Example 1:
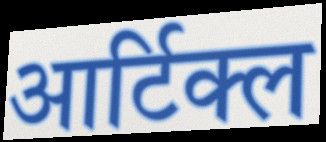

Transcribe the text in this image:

आर्टिक्ल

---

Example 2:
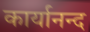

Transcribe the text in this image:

कार्यानन्द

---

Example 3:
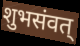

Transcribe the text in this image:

शुभसंवत्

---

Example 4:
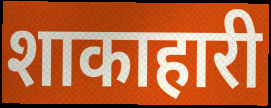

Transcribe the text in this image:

शाकाहारी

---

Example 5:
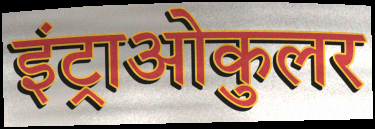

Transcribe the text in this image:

इंट्राओकुलर